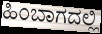
ಹಿಂಬಾಗದಲ್ಲಿ